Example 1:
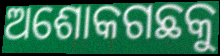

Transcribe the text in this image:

ଅଶୋକଗଛକୁ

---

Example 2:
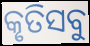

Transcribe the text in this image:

କୃତିସବୁ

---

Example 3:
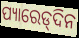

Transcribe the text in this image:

ପ୍ୟାରେଡ୍‌ଦିନ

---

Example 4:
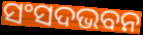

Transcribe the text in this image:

ସଂସଦଭବନ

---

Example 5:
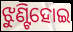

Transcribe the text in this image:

ଝୁଣ୍ଟିହୋଇ